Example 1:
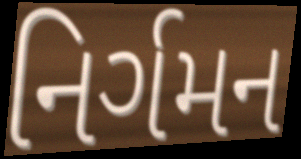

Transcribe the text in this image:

નિર્ગમન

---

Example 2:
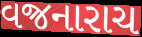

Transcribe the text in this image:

વજ્રનારાચ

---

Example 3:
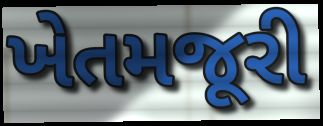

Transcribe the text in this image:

ખેતમજૂરી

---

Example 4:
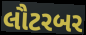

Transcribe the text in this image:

લૌટરબર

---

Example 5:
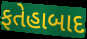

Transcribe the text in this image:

ફતેહાબાદ